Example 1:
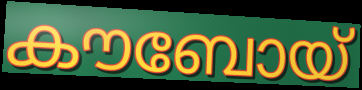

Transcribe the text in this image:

കൗബോയ്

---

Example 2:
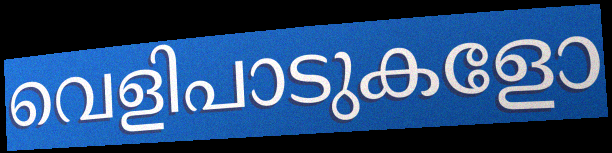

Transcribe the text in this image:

വെളിപാടുകളോ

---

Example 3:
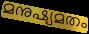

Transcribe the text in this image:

മനുഷ്യമതം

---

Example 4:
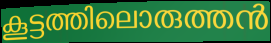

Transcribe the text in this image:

കൂട്ടത്തിലൊരുത്തൻ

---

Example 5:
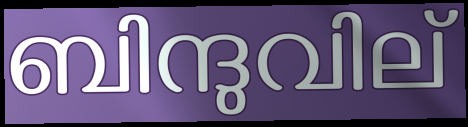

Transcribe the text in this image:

ബിന്ദുവില്